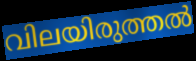
വിലയിരുത്തൽ